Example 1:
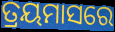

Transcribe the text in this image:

ତ୍ରୟମାସରେ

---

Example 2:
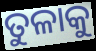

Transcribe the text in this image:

ତୁଳାକୁ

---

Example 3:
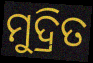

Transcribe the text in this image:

ମୁଦ୍ରିତ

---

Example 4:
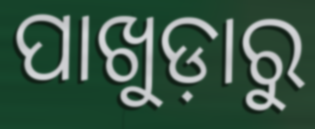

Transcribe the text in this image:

ପାଖୁଡ଼ାରୁ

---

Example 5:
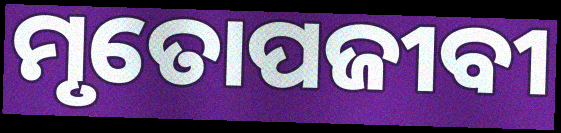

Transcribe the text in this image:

ମୃତୋପଜୀବୀ